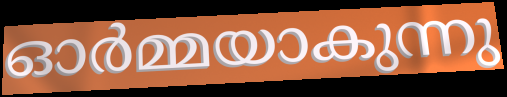
ഓർമ്മയാകുന്നു